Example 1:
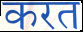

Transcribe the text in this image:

करत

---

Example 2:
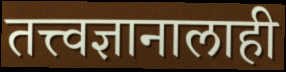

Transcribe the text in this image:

तत्त्वज्ञानालाही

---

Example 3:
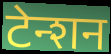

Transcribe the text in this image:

टेन्शन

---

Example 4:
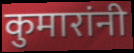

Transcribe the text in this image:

कुमारांनी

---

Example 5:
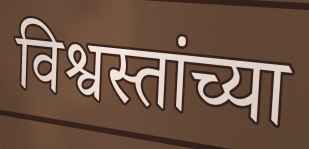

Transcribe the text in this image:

विश्वस्तांच्या